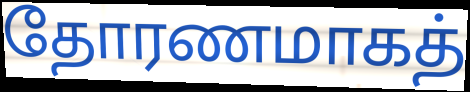
தோரணமாகத்